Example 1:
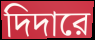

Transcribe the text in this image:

দিদারে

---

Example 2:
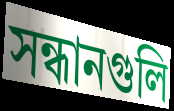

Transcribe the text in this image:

সন্ধানগুলি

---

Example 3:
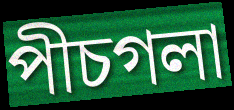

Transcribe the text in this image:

পীচগলা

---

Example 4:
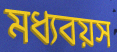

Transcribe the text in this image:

মধ্যবয়স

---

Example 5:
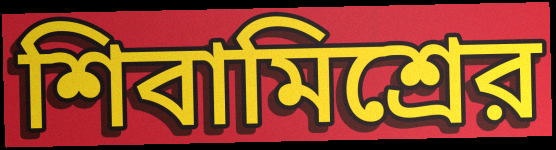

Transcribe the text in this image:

শিবামিশ্রের